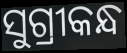
ସୁଗ୍ରୀକନ୍ଧ